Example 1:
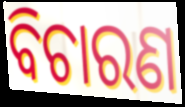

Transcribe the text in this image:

ବିଚାରଣ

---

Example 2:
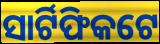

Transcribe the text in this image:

ସାର୍ଟିଫିକଟେ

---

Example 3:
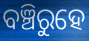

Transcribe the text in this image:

ବଞ୍ଚିରୁହେ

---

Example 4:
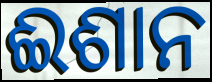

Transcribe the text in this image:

ଈଶାନ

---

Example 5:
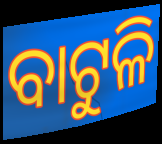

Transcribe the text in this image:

ବାଟୁଳି